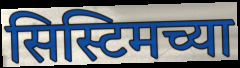
सिस्टिमच्या